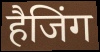
हैजिंग